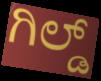
ಗಿಲ್ಡ್